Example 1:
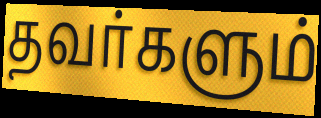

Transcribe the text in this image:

தவர்களும்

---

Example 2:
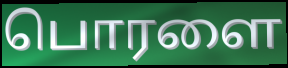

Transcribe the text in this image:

பொரளை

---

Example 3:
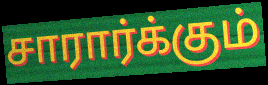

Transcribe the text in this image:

சாரார்க்கும்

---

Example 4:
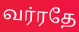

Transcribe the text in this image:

வர்ரதே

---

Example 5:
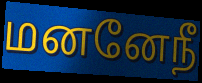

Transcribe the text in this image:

மனனேநீ